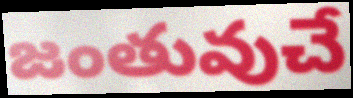
జంతువుచే